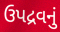
ઉપદ્રવનું